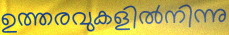
ഉത്തരവുകളിൽനിന്നു